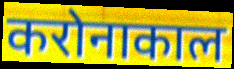
करोनाकाल